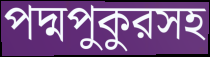
পদ্মপুকুরসহ